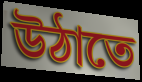
উঠাতে